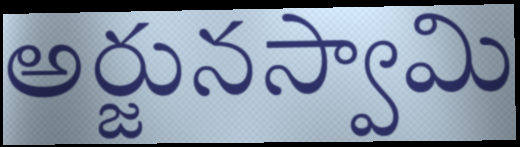
అర్జునస్వామి